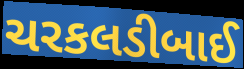
ચરકલડીબાઈ